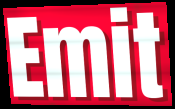
Emit